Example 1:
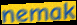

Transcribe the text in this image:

nemak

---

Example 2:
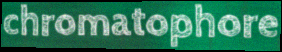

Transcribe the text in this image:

chromatophore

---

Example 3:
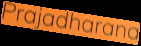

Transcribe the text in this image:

Prajadharana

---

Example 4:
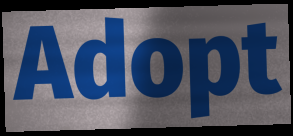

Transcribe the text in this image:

Adopt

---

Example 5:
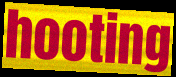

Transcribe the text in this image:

hooting